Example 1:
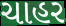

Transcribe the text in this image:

ચાહર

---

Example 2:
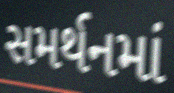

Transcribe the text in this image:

સમર્થનમાં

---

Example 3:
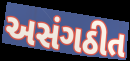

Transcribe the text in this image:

અસંગઠીત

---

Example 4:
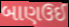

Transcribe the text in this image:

બાણઉઈ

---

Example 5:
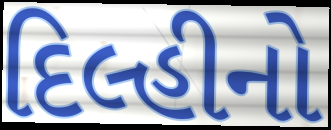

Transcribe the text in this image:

દિલ્હીનો